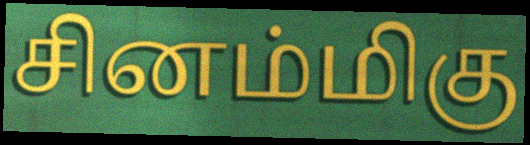
சினம்மிகு